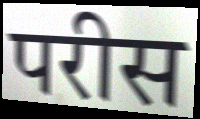
परीस